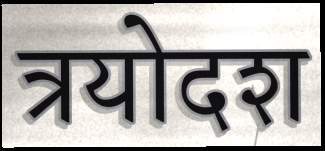
त्रयोदश